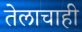
तेलाचाही